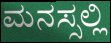
ಮನಸ್ಸಲ್ಲಿ